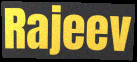
Rajeev